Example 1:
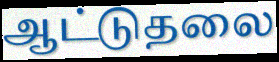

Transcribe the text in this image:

ஆட்டுதலை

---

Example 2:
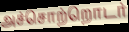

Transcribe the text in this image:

அச்சொற்றொடர்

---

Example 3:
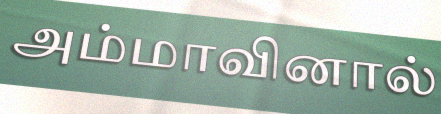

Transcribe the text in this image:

அம்மாவினால்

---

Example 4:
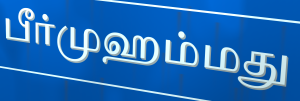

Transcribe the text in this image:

பீர்முஹம்மது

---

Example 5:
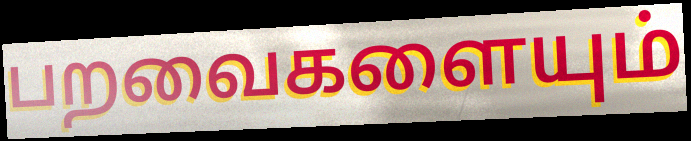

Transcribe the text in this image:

பறவைகளையும்